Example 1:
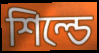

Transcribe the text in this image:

শিল্ডে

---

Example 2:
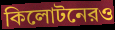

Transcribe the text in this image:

কিলোটনেরও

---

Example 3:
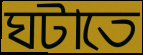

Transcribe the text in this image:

ঘটাতে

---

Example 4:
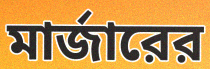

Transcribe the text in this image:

মার্জারের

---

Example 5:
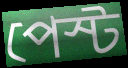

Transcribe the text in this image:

পেস্ট